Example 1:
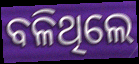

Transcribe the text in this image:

ବଳିଥିଲେ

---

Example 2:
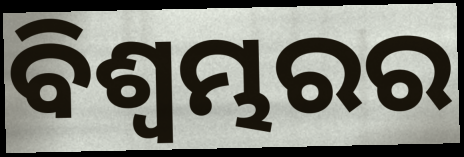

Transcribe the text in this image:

ବିଶ୍ଵମ୍ଭରର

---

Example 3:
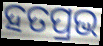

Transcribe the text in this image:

ହତପ୍ରଭ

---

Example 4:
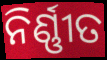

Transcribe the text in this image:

ନିର୍ଣ୍ଣୀତ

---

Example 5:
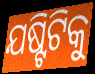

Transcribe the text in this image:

ଯଷ୍ଟିଟିକୁ